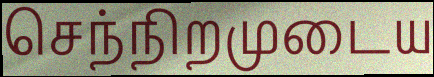
செந்நிறமுடைய